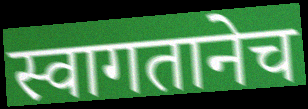
स्वागतानेच